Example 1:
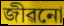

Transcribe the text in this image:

জীৱনো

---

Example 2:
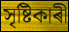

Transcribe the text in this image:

সৃষ্টিকাৰী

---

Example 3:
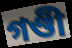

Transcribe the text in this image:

গণ্ডী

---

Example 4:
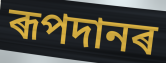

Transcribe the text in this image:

ৰূপদানৰ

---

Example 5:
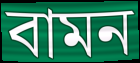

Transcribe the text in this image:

বামন